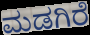
ಮಡಗಿರೆ